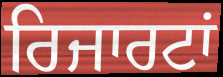
ਰਿਜਾਰਟਾਂ